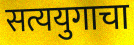
सत्ययुगाचा